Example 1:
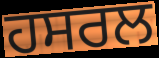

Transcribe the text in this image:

ਹਸਰਲ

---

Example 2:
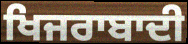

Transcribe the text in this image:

ਖਿਜਰਾਬਾਦੀ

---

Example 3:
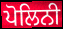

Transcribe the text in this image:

ਪੋਲਿਨੀ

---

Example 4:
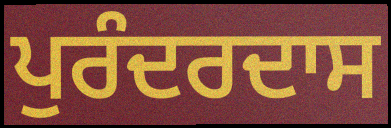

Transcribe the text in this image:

ਪੁਰੰਦਰਦਾਸ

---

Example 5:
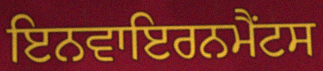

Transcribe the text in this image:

ਇਨਵਾਇਰਨਮੈਂਟਸ